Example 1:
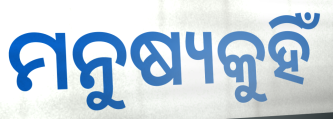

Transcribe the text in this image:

ମନୁଷ୍ୟକୁହିଁ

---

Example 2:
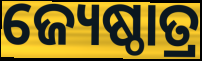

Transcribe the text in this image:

ଜ୍ୟେଷ୍ଠାତ୍ର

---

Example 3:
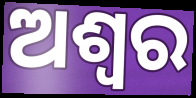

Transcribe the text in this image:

ଅଶ୍ୱର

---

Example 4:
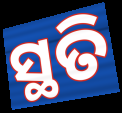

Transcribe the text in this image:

ସ୍ଥତି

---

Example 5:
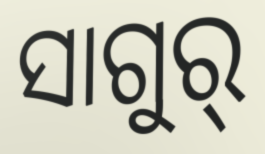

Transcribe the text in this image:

ସାଗୁର୍